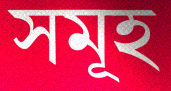
সমূহ